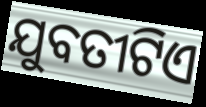
ଯୁବତୀଟିଏ